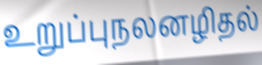
உறுப்புநலனழிதல்